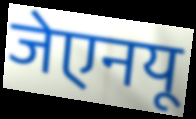
जेएनयू